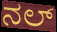
ನಲ್